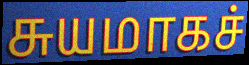
சுயமாகச்